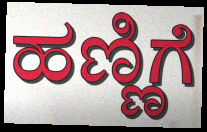
ಹಣ್ಣಿಗೆ